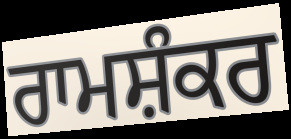
ਰਾਮਸ਼ੰਕਰ